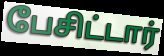
பேசிட்டார்